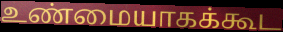
உண்மையாகக்கூட